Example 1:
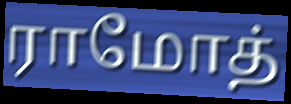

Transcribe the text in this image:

ராமோத்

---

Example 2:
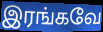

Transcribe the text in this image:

இரங்கவே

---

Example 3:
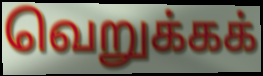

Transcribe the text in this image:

வெறுக்கக்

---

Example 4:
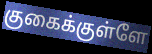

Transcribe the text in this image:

குகைக்குள்ளே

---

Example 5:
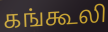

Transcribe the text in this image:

கங்கூலி